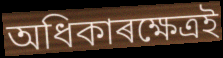
অধিকাৰক্ষেত্ৰই